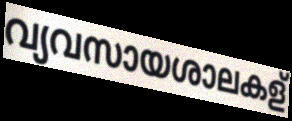
വ്യവസായശാലകള്